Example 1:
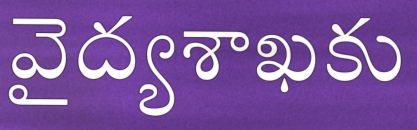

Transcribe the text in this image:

వైద్యశాఖకు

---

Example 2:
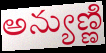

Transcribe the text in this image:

అన్యుణ్ణి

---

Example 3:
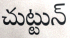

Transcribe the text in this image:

చుట్టున్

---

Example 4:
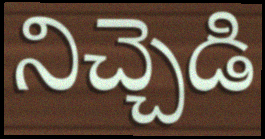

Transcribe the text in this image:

నిచ్చెడి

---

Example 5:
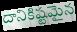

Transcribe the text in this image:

దానికిష్టమైన